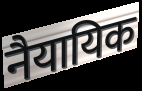
नैयायिक